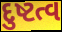
દુષ્ટત્વ